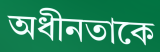
অধীনতাকে